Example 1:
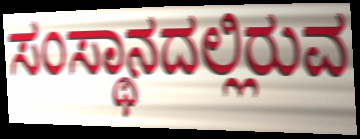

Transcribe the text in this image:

ಸಂಸ್ಥಾನದಲ್ಲಿರುವ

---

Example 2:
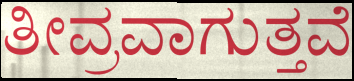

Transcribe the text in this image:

ತೀವ್ರವಾಗುತ್ತವೆ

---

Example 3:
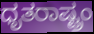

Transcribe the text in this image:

ಧೃತರಾಷ್ಟ್ರಂ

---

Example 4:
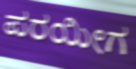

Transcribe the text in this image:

ಪರಯೀಗ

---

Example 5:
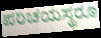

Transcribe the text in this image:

ಪರಿಚಯಸ್ಥರೂ